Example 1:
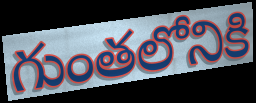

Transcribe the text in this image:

గుంతలోనికి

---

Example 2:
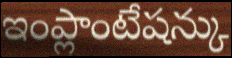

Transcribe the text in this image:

ఇంప్లాంటేషన్కు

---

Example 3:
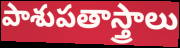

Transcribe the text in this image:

పాశుపతాస్త్రాలు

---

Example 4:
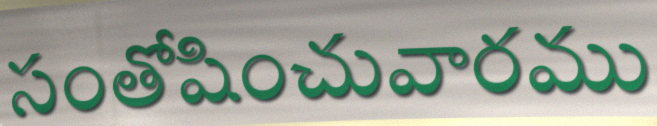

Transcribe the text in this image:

సంతోషించువారము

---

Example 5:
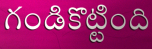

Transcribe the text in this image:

గండికొట్టింది